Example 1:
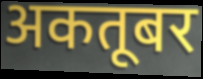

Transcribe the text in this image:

अकतूबर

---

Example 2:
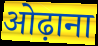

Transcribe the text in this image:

ओढ़ाना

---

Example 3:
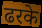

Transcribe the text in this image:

ढरके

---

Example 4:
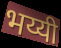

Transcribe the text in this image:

भय्यी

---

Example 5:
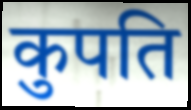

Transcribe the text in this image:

कुपति